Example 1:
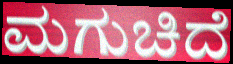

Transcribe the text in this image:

ಮಗುಚಿದೆ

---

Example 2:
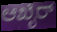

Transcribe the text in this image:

ಆಖೈರ್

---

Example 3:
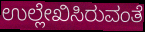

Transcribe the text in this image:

ಉಲ್ಲೇಖಿಸಿರುವಂತೆ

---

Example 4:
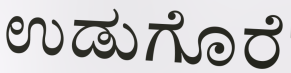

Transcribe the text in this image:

ಉಡುಗೊರೆ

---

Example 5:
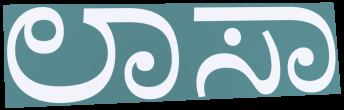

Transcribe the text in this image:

ಲಾಸಾ